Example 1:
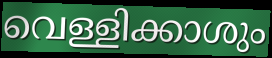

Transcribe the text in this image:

വെള്ളിക്കാശും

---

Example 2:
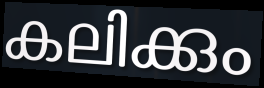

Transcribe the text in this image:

കലിക്കും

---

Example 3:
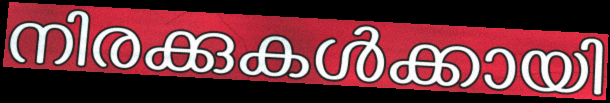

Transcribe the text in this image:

നിരക്കുകൾക്കായി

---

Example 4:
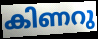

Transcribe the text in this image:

കിണറു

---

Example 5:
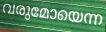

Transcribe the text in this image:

വരുമോയെന്ന